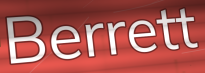
Berrett